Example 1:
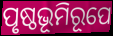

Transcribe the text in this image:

ପୃଷ୍ଠଭୂମିରୂପେ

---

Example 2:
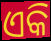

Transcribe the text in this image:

ଏକି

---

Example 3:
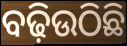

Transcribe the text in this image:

ବଢ଼ିଉଠିଛି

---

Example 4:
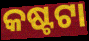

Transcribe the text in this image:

କଷ୍ଟଟା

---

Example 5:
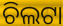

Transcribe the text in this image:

ଚିଲଟା